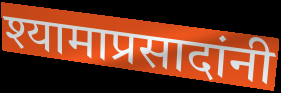
श्यामाप्रसादांनी